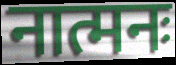
नात्मनः